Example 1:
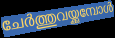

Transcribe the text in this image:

ചേർത്തുവയ്ക്കുമ്പോൾ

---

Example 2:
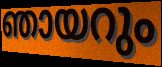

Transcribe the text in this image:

ഞായറും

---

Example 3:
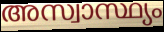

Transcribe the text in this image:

അസ്വാസ്ഥ്യം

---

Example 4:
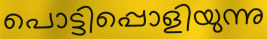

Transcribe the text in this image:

പൊട്ടിപ്പൊളിയുന്നു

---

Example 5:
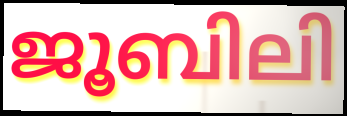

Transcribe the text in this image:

ജൂബിലി